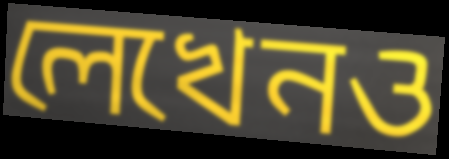
লেখেনও